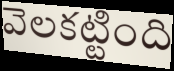
వెలకట్టింది